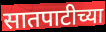
सातपाटीच्या